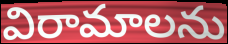
విరామాలను